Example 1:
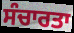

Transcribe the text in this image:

ਸੰਚਾਰਤਾ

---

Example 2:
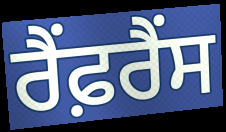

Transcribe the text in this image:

ਰੈਂਫ਼ਰੈਂਸ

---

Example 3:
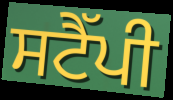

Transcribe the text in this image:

ਸਟੈੱਪੀ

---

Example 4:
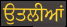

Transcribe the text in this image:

ਉਤਲੀਆਂ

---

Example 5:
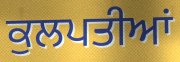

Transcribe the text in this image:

ਕੁਲਪਤੀਆਂ